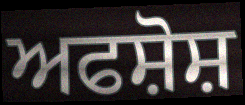
ਅਫਸ਼ੋਸ਼